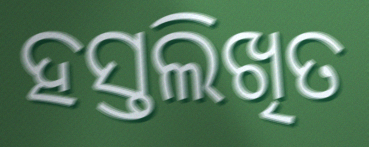
ହସ୍ତଲିଖିତ